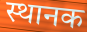
स्थानक